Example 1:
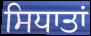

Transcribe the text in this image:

ਸਿਧਾਤਾਂ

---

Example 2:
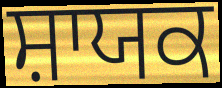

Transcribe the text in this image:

ਸ਼ਾਯਕ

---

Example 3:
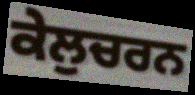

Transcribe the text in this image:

ਕੇਲੁਚਰਨ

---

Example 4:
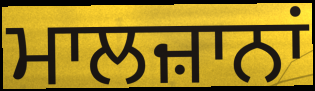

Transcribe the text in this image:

ਮਾਲਜ਼ਾਨਾਂ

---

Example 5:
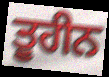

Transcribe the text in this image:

ਤੂਹੀਨ